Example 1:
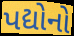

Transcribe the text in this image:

પદ્યોનો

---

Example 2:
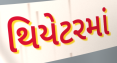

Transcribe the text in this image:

થિયેટરમાં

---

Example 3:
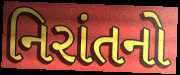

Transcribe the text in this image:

નિરાંતનો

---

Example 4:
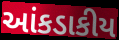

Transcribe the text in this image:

આંકડાકીય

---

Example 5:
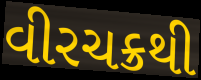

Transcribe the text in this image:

વીરચક્રથી